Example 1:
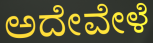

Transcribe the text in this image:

ಅದೇವೇಳೆ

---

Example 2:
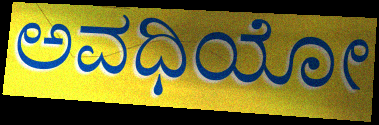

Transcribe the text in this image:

ಅವಧಿಯೋ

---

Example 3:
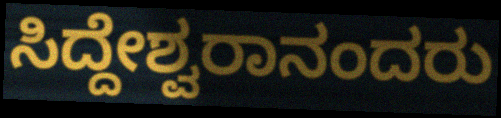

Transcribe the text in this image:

ಸಿದ್ದೇಶ್ವರಾನಂದರು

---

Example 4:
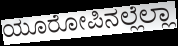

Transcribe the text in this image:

ಯೂರೋಪಿನಲ್ಲೆಲ್ಲಾ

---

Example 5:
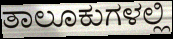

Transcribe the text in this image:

ತಾಲೂಕುಗಳಲ್ಲಿ